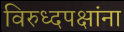
विरुध्दपक्षांना